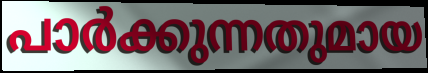
പാർക്കുന്നതുമായ